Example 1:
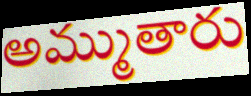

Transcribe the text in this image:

అమ్ముతారు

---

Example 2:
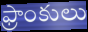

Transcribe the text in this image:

ఫ్రాంకులు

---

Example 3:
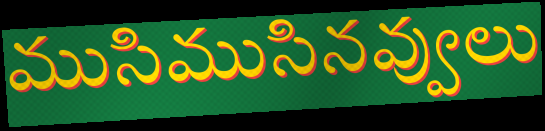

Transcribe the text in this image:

ముసిముసినవ్వులు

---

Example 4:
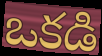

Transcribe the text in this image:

ఒకడి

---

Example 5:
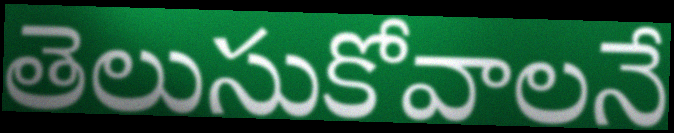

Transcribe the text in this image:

తెలుసుకోవాలనే